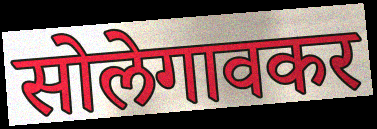
सोलेगावकर